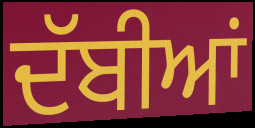
ਦੱਬੀਆਂ